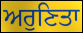
ਅਰੁਣਿਤਾ